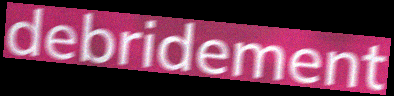
debridement